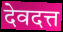
देवदत्त